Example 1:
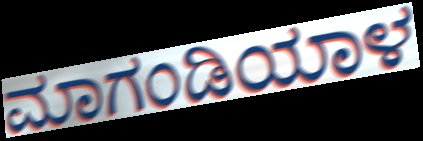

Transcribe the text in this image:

ಮಾಗಂಡಿಯಾಳ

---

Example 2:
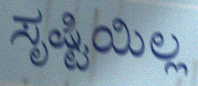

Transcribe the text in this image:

ಸೃಷ್ಟಿಯಿಲ್ಲ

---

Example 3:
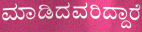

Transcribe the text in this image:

ಮಾಡಿದವರಿದ್ದಾರೆ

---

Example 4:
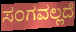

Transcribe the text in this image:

ಸಂಗವಲ್ಲದೆ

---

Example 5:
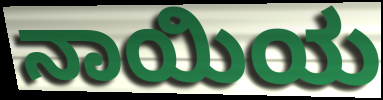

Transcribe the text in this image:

ನಾಯಿಯ